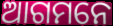
ଆଗମନେ